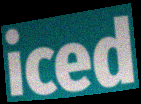
iced